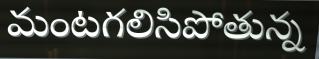
మంటగలిసిపోతున్న